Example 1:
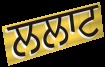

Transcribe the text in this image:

ਲਲਾਟ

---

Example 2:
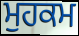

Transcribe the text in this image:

ਮੁਹਕਮ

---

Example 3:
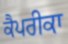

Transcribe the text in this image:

ਕੈਪਰੀਕਾ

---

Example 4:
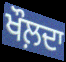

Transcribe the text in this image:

ਖੌਲ਼ਦਾ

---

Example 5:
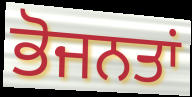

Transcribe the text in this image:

ਭੋਜਨਤਾਂ